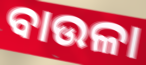
ବାଉଳା